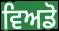
ਵਿਅਡੋ